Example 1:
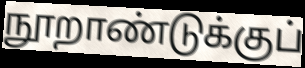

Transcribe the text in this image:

நூறாண்டுக்குப்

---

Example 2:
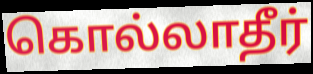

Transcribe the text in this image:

கொல்லாதீர்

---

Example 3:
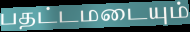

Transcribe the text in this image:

பதட்டமடையும்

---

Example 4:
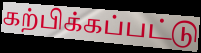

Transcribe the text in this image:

கற்பிக்கப்பட்டு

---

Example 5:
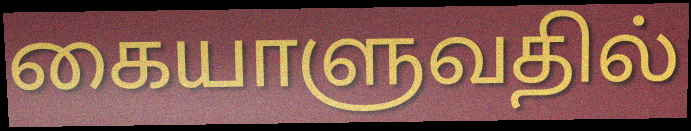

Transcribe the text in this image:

கையாளுவதில்